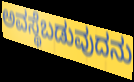
ಅವಸ್ಥೆಬಡುವುದನು